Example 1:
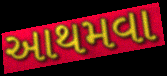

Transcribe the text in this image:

આથમવા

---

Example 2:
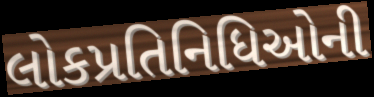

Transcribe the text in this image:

લોકપ્રતિનિધિઓની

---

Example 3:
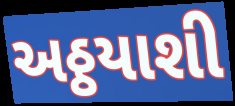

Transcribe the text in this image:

અઠ્ઠયાશી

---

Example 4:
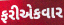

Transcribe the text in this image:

ફરીએકવાર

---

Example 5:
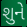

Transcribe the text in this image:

શુને